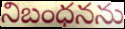
నిబంధనను